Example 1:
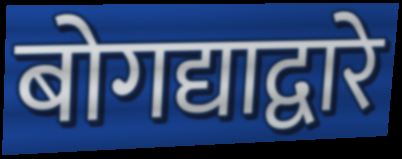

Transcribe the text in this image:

बोगद्याद्वारे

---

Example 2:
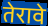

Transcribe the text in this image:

तेरावे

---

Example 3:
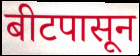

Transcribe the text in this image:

बीटपासून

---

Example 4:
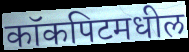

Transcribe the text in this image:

कॉकपिटमधील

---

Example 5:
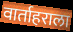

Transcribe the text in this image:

वार्ताहराला